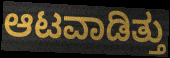
ಆಟವಾಡಿತ್ತು